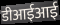
डीआईआई